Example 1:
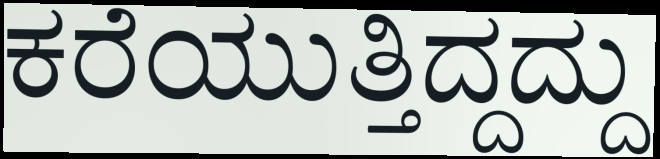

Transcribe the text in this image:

ಕರೆಯುತ್ತಿದ್ದದ್ದು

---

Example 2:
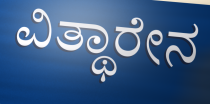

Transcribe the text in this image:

ವಿತ್ಥಾರೇನ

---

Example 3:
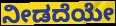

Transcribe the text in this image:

ನೀಡದೆಯೇ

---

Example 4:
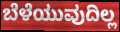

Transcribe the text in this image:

ಬೆಳೆಯುವುದಿಲ್ಲ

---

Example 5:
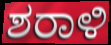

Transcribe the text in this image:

ಶರಾಳಿ